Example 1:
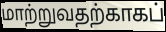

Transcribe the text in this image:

மாற்றுவதற்காகப்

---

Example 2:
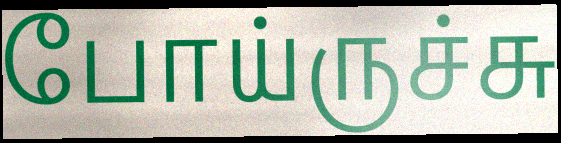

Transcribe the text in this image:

போய்ருச்சு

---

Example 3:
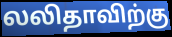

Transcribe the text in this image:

லலிதாவிற்கு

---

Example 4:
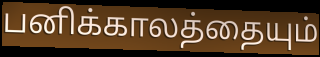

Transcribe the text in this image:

பனிக்காலத்தையும்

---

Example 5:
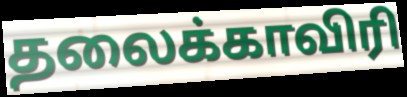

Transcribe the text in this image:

தலைக்காவிரி